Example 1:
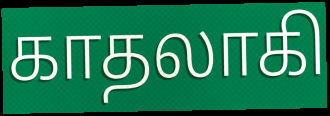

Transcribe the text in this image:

காதலாகி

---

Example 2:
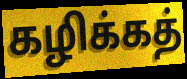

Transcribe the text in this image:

கழிக்கத்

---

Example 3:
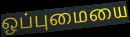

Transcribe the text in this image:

ஒப்புமையை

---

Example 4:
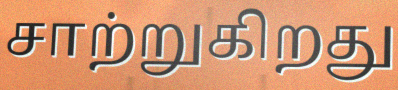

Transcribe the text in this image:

சாற்றுகிறது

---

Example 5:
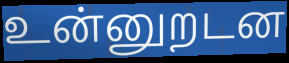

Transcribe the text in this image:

உன்னுறடன